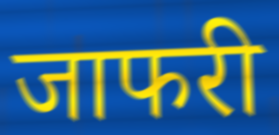
जाफरी